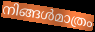
നിങ്ങൾമാത്രം